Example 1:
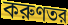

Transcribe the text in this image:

করুণতর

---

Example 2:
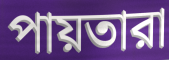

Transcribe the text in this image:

পায়তারা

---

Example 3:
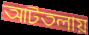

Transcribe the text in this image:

আটতলায়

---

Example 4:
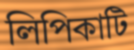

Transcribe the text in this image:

লিপিকাটি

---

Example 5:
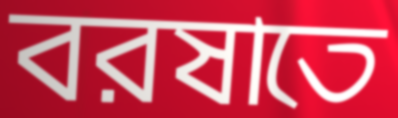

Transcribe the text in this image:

বরষাতে